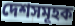
দেশসমূহক